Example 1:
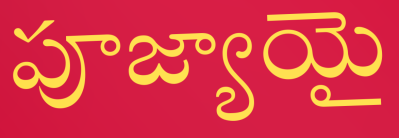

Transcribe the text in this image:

పూజ్యాయై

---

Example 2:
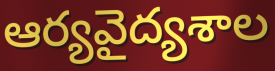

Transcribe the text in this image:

ఆర్యవైద్యశాల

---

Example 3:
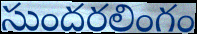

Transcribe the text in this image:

సుందరలింగం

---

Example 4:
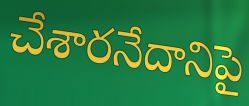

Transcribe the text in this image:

చేశారనేదానిపై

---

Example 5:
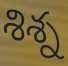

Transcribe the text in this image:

శిశ్న